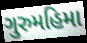
ગુરુમહિમા